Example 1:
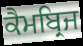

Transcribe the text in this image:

ਕੈਮਬ੍ਰਿਜ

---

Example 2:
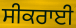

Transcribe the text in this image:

ਸੀਕਰਾਈ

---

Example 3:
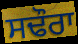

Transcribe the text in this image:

ਸਢੌਰਾ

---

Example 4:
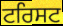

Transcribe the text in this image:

ਟਰਿਸਟ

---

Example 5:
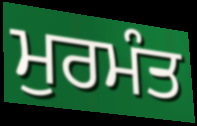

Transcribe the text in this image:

ਮੁਰਮੰਤ